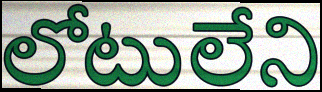
లోటులేని